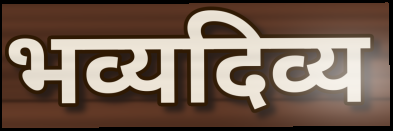
भव्यदिव्य